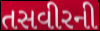
તસવીરની